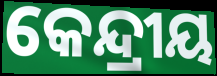
କେନ୍ଦ୍ରୀୟ